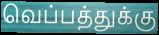
வெப்பத்துக்கு